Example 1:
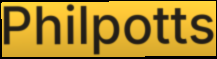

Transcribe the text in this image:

Philpotts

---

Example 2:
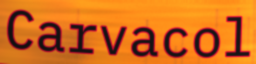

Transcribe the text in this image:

Carvacol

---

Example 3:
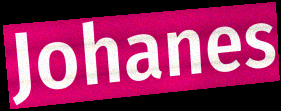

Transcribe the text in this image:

Johanes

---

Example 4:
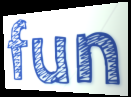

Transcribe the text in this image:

fun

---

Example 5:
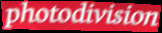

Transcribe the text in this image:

photodivision